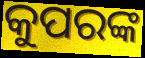
କୁପରଙ୍କ